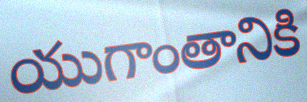
యుగాంతానికి